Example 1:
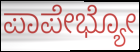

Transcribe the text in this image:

ಪಾಪೇಭ್ಯೋ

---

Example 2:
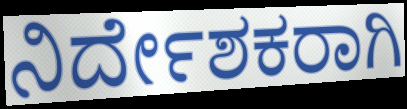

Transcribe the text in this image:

ನಿರ್ದೇಶಕರಾಗಿ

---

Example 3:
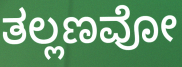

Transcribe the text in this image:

ತಲ್ಲಣವೋ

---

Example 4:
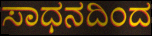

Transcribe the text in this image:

ಸಾಧನದಿಂದ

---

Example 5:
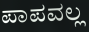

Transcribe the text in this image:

ಪಾಪವಲ್ಲ